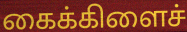
கைக்கிளைச்